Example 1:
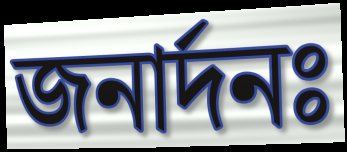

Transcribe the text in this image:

জনার্দনঃ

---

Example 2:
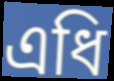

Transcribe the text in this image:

এধি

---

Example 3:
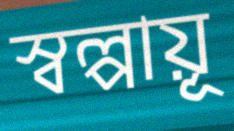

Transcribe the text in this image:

স্বল্পায়ূ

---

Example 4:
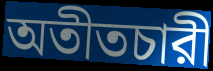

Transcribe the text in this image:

অতীতচারী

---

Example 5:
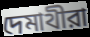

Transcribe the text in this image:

দেমাথীরা